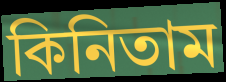
কিনিতাম